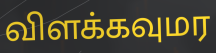
விளக்கவுமர